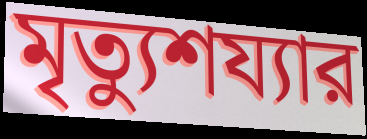
মৃত্যুশয্যার